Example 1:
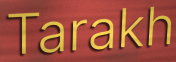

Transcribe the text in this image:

Tarakh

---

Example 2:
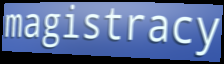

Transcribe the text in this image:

magistracy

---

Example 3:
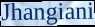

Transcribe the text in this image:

Jhangiani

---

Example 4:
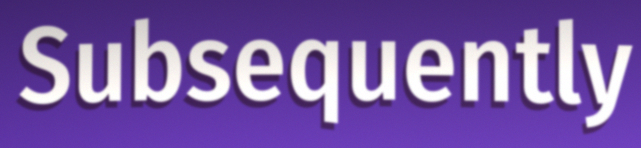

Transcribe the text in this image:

Subsequently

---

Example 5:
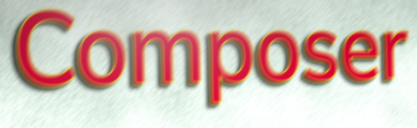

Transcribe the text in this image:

Composer